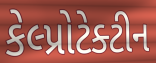
કેલ્પ્રોટેક્ટીન